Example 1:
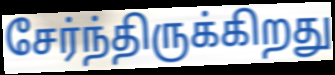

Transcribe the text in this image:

சேர்ந்திருக்கிறது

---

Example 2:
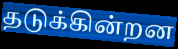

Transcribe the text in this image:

தடுக்கின்றன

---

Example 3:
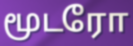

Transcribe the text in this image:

மூடரோ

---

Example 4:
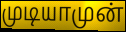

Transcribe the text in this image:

முடியாமுன்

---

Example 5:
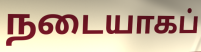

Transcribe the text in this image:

நடையாகப்